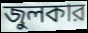
জুলকার